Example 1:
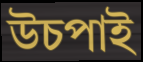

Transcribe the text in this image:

উচপাই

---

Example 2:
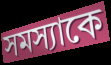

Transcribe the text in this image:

সমস্যাকে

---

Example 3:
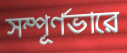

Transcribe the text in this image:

সম্পূৰ্ণভাৱে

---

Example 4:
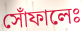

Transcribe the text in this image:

সোঁফালেঃ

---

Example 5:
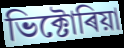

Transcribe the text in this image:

ভিক্টোৰিয়া